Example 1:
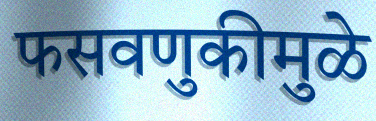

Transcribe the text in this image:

फसवणुकीमुळे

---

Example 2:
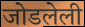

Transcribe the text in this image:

जोडलेली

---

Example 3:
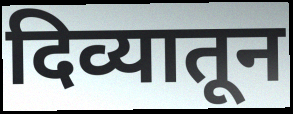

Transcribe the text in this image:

दिव्यातून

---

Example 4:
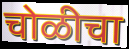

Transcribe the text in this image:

चोळीचा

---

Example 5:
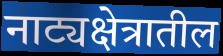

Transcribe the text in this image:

नाट्यक्षेत्रातील